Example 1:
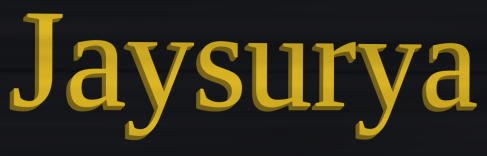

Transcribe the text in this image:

Jaysurya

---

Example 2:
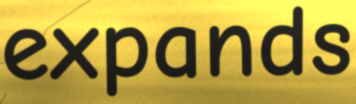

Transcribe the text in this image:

expands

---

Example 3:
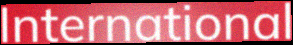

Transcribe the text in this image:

International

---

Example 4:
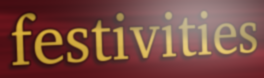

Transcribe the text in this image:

festivities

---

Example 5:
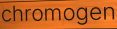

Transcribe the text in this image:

chromogen